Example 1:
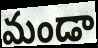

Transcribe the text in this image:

మండా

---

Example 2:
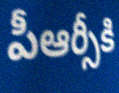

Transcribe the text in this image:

పీఆర్సీకి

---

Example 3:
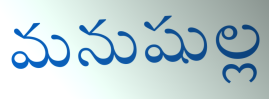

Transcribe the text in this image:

మనుషుల్ల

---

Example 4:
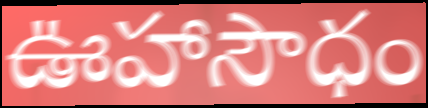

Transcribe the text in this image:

ఊహాసౌధం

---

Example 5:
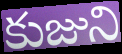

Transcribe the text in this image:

కుజుని